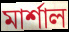
মাৰ্শাল